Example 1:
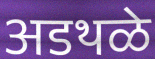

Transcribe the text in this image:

अडथळे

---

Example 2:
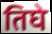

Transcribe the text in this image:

तिघे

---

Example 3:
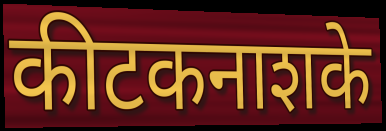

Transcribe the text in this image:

कीटकनाशके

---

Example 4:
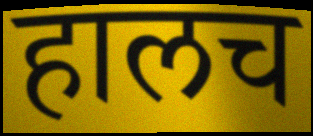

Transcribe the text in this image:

हालच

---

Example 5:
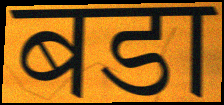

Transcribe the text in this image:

बडा